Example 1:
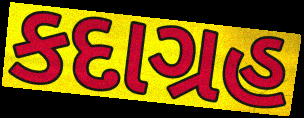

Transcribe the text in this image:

કદાગ્રહ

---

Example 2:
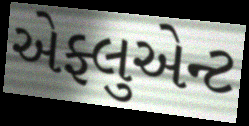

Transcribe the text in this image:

એફ્લુએન્ટ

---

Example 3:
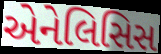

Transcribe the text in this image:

એનેલિસિસ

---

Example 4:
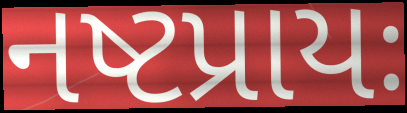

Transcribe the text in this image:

નષ્ટપ્રાયઃ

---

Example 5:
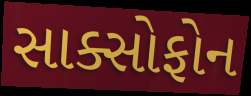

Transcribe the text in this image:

સાક્સોફોન